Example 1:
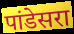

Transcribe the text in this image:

पांडेसरा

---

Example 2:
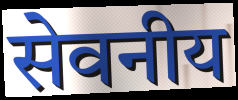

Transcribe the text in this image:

सेवनीय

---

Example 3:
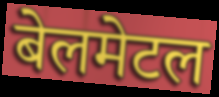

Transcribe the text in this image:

बेलमेटल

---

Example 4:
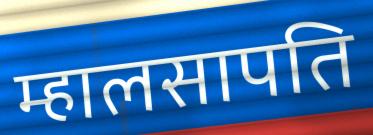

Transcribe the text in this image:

म्हालसापति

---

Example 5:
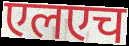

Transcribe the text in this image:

एलएच